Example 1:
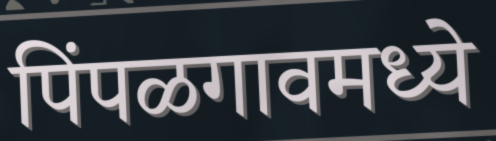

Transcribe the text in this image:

पिंपळगावमध्ये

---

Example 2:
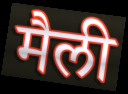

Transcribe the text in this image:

मैली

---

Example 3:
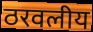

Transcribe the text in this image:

ठरवलीय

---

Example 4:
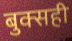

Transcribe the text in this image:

बुक्सही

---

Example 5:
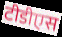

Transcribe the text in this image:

टीडीएस